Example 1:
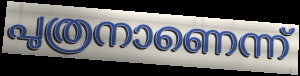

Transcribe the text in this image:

പുത്രനാണെന്ന്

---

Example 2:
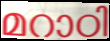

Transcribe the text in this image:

മറാഠി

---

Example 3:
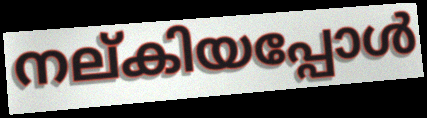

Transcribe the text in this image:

നല്കിയപ്പോൾ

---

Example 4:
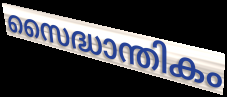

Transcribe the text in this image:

സൈദ്ധാന്തികം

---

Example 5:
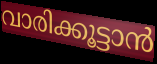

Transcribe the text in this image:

വാരിക്കൂട്ടാൻ